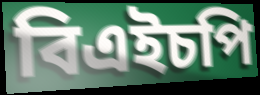
বিএইচপি